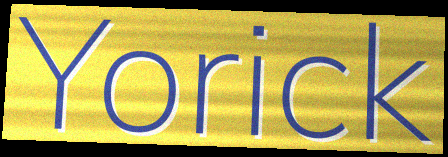
Yorick